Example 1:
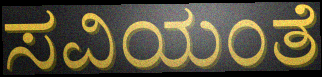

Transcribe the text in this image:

ಸವಿಯಂತೆ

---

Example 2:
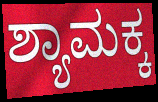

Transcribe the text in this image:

ಶ್ಯಾಮಕ್ಕ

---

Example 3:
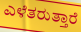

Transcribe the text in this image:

ಎಳೆತರುತ್ತಾರೆ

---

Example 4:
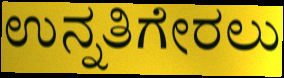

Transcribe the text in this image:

ಉನ್ನತಿಗೇರಲು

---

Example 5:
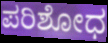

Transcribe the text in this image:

ಪರಿಶೋಧ